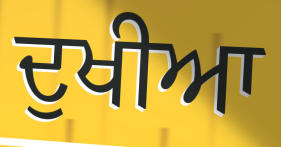
ਦੁਖੀਆ